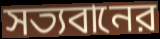
সত্যবানের